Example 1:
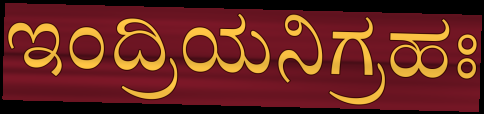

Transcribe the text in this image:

ಇಂದ್ರಿಯನಿಗ್ರಹಃ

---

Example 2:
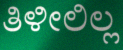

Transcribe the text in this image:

ತಿಳೀಲಿಲ್ಲ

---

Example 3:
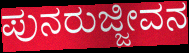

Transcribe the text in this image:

ಪುನರುಜ್ಜೀವನ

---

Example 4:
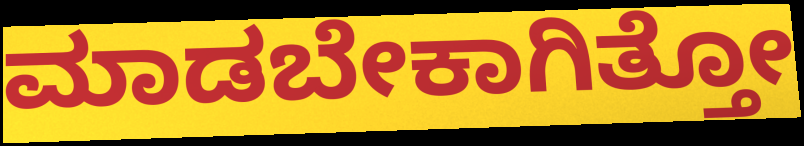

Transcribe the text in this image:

ಮಾಡಬೇಕಾಗಿತ್ತೋ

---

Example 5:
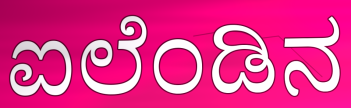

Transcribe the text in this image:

ಐಲೆಂಡಿನ